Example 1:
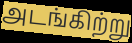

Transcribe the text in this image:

அடங்கிற்று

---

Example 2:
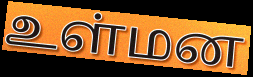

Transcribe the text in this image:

உள்மன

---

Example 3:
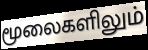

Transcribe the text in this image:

மூலைகளிலும்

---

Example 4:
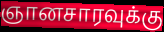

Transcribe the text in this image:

ஞானசாரவுக்கு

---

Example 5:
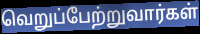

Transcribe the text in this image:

வெறுப்பேற்றுவார்கள்